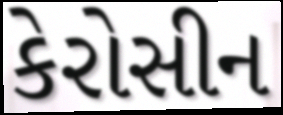
કેરોસીન